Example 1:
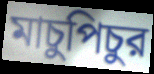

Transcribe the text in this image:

মাচুপিচুর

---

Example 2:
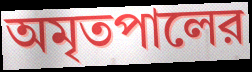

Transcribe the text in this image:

অমৃতপালের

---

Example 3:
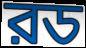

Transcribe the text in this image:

রড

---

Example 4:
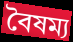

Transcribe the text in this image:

বৈষম্য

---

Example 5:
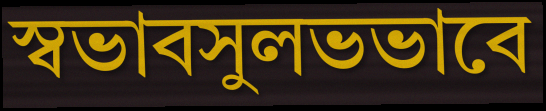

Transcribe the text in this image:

স্বভাবসুলভভাবে